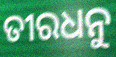
ତୀରଧନୁ